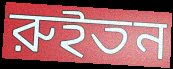
রুইতন